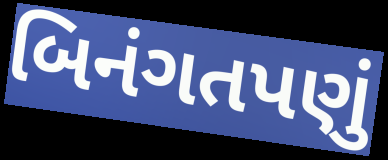
બિનંગતપણું